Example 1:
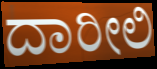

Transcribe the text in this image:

ದಾರೀಲಿ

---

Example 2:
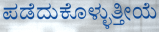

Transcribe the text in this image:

ಪಡೆದುಕೊಳ್ಳುತ್ತೀಯೆ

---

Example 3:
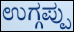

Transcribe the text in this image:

ಉಗ್ಗಪ್ಪು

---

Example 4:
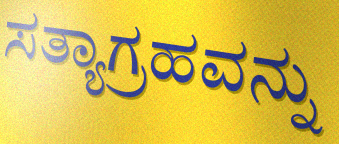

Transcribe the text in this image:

ಸತ್ಯಾಗ್ರಹವನ್ನು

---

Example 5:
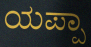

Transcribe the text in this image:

ಯಪ್ಪಾ